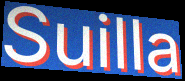
Suilla